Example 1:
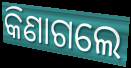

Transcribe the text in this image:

କିଣାଗଲେ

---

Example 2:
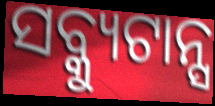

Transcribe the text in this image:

ସବ୍କ୍ୟୁଟାନ୍ସ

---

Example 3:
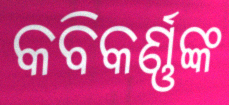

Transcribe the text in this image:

କବିକର୍ଣ୍ଣଙ୍କ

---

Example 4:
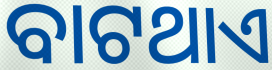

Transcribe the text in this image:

ବାଟଥାଏ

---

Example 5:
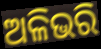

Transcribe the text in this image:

ଅଳିଭରି